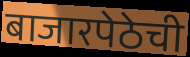
बाजारपेठेची